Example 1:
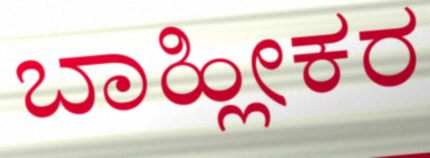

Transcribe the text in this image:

ಬಾಹ್ಲೀಕರ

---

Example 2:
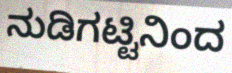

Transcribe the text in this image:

ನುಡಿಗಟ್ಟಿನಿಂದ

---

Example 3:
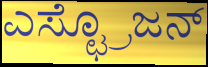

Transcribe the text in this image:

ಎಸ್ಟ್ರೊಜನ್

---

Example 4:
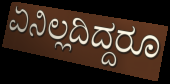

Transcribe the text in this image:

ಏನಿಲ್ಲದಿದ್ದರೂ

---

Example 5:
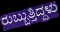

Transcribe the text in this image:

ರುಬ್ಬುತ್ತಿದ್ದಳು